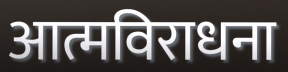
आत्मविराधना